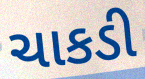
ચાકડી